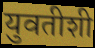
युवतीशी